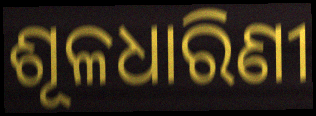
ଶୂଳଧାରିଣୀ